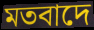
মতবাদে